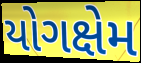
યોગક્ષેમ